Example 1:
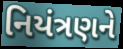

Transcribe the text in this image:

નિયંત્રણને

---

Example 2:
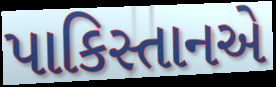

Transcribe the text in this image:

પાકિસ્તાનએ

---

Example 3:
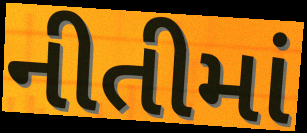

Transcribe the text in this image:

નીતીમાં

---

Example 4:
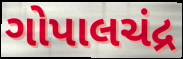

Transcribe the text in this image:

ગોપાલચંદ્ર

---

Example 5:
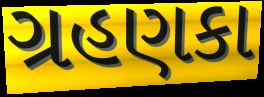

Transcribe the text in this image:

ગ્રહણકા